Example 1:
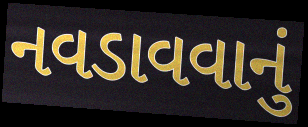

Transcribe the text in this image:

નવડાવવાનું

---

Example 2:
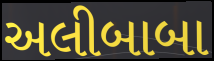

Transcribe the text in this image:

અલીબાબા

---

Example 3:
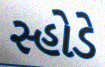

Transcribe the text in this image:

સ્હોડે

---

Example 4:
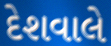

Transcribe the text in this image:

દેશવાલે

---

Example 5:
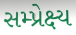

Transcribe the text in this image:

સમ્પ્રેક્ષ્ય